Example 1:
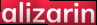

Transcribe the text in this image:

alizarin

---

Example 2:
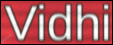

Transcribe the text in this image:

Vidhi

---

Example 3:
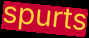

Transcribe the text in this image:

spurts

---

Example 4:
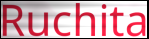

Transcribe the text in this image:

Ruchita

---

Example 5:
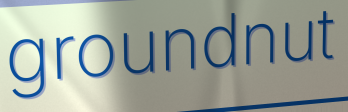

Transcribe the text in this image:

groundnut